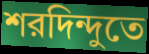
শরদিন্দুতে